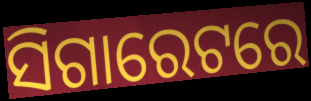
ସିଗାରେଟରେ